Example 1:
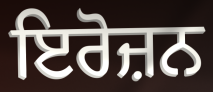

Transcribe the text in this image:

ਇਰੋਜ਼ਨ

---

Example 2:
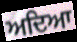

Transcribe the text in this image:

ਅਦਿਆ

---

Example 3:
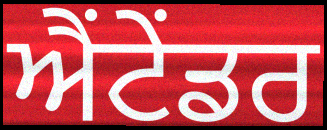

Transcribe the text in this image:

ਐਂਟੇਂਡਰ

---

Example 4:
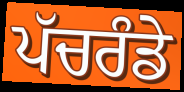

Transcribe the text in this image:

ਪੱਚਰੰਡੇ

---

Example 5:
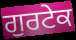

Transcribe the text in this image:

ਗੁਰਟੇਕ